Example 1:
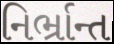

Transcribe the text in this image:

નિર્ભ્રાન્ત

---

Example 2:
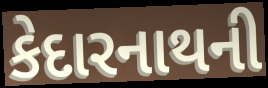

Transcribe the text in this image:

કેદારનાથની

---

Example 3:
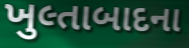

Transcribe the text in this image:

ખુલ્તાબાદના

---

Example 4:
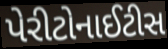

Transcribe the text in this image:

પેરીટોનાઈટીસ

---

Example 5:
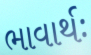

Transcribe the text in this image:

ભાવાર્થઃ